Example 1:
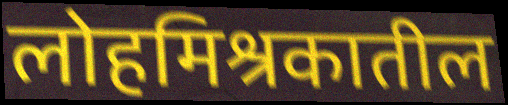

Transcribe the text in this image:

लोहमिश्रकातील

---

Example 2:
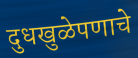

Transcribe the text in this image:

दुधखुळेपणाचे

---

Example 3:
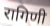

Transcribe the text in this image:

रागिणी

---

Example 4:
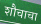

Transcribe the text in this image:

शौचाचा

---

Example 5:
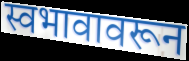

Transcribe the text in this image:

स्वभावावरून